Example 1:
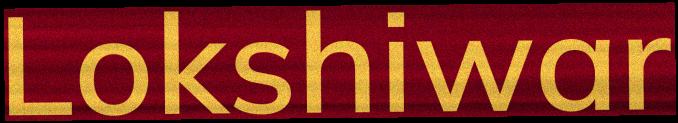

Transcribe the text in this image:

Lokshiwar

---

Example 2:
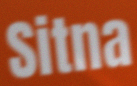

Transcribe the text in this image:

Sitna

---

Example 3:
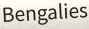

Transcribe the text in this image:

Bengalies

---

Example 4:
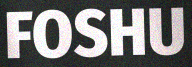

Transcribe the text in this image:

FOSHU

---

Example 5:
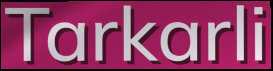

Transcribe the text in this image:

Tarkarli